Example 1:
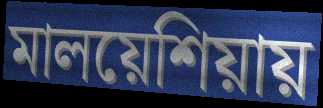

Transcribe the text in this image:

মালয়েশিয়ায়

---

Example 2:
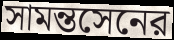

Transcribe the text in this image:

সামন্তসেনের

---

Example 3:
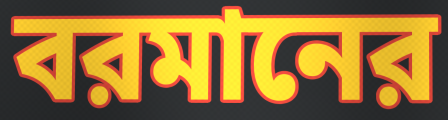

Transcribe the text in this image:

বরমানের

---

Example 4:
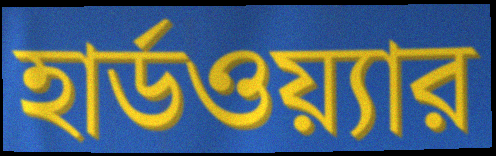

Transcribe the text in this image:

হার্ডওয়্যার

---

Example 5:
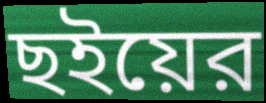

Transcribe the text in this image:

ছইয়ের